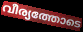
വീര്യത്തോടെ